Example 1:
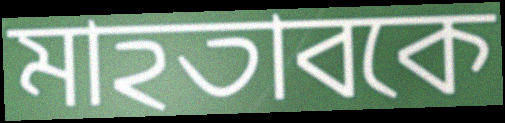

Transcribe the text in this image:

মাহতাবকে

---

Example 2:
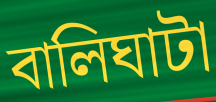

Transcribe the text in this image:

বালিঘাটা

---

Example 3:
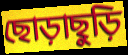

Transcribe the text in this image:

ছোড়াছুড়ি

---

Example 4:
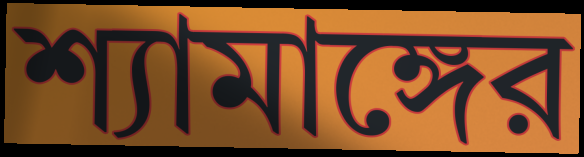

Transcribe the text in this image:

শ্যামাঙ্গের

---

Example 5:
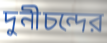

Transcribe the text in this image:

দুনীচন্দের